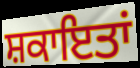
ਸ਼ਕਾਇਤਾਂ